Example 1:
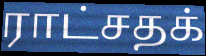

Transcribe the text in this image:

ராட்சதக்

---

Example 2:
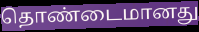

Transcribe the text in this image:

தொண்டைமானது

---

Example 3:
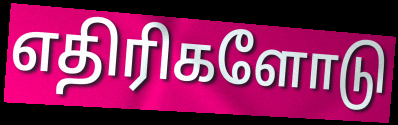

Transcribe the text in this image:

எதிரிகளோடு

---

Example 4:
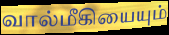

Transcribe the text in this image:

வால்மீகியையும்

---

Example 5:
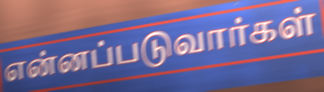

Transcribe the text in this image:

என்னப்படுவார்கள்